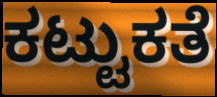
ಕಟ್ಟುಕತೆ